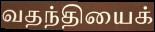
வதந்தியைக்